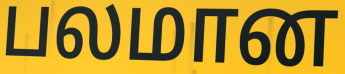
பலமான